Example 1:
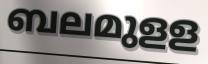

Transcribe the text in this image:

ബലമുളള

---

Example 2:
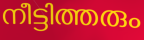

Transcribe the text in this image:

നീട്ടിത്തരും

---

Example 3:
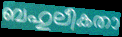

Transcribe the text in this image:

ബഹുലീകതാ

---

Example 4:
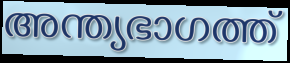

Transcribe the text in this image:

അന്ത്യഭാഗത്ത്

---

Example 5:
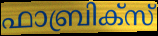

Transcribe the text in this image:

ഫാബ്രിക്സ്